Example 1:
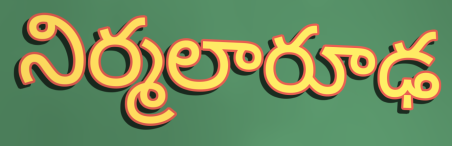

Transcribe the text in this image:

నిర్మలారూఢ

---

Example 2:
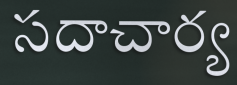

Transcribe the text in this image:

సదాచార్య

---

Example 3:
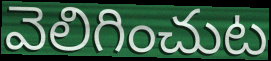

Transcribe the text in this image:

వెలిగించుట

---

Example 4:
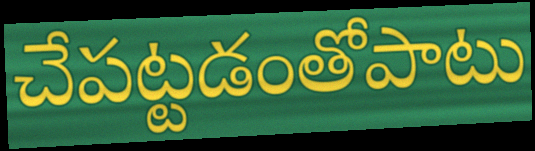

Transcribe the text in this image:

చేపట్టడంతోపాటు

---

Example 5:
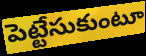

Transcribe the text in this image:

పెట్టేసుకుంటూ